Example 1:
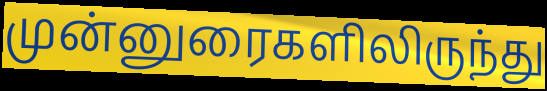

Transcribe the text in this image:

முன்னுரைகளிலிருந்து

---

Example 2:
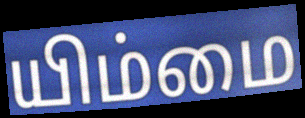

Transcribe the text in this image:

யிம்மை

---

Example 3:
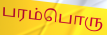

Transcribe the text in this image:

பரம்பொரு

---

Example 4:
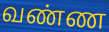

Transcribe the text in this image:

வண்ண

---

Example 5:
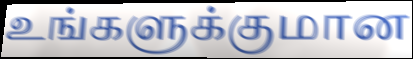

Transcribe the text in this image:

உங்களுக்குமான